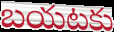
బయటకు